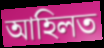
আহিলত